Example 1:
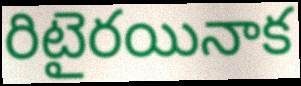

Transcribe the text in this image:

రిటైరయినాక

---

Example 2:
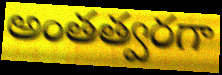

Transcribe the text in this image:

అంతత్వరగా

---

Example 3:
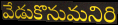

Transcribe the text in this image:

వేడుకొనుమనిరి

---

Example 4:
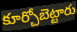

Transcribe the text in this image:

కూర్చోబెట్టారు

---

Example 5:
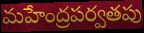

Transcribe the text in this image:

మహేంద్రపర్వతపు